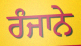
ਰੰਜਾਨੇ